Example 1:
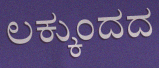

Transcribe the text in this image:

ಲಕ್ಕುಂದದ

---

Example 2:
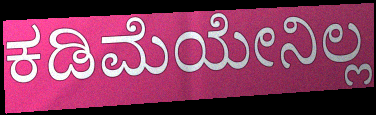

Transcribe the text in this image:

ಕಡಿಮೆಯೇನಿಲ್ಲ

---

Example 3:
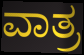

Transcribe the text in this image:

ವಾತ್ರ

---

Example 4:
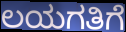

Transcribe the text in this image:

ಲಯಗತಿಗೆ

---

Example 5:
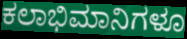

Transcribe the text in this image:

ಕಲಾಭಿಮಾನಿಗಳೂ